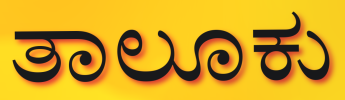
ತಾಲೂಕು